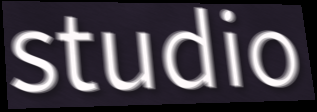
studio